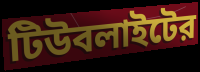
টিউবলাইটের